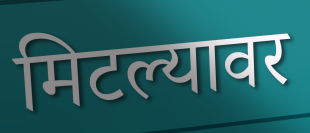
मिटल्यावर